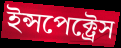
ইন্সপেক্ট্রেস